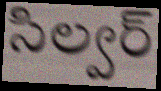
సిల్వర్